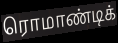
ரொமாண்டிக்